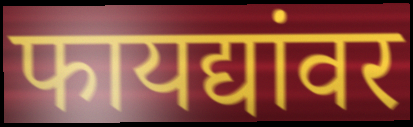
फायद्यांवर